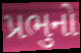
પ્રભુનો